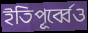
ইতিপূর্ব্বেও